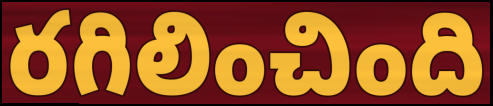
రగిలించింది